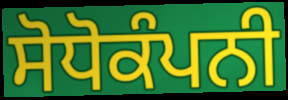
ਸੋਧੋਕੰਪਨੀ